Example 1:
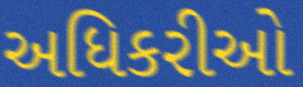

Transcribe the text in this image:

અધિકરીઓ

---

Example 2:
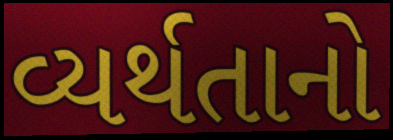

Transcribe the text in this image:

વ્યર્થતાનો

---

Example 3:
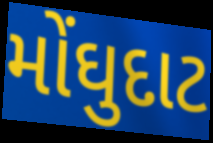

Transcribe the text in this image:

મોંઘુદાટ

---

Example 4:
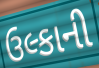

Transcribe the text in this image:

ઉલ્કાની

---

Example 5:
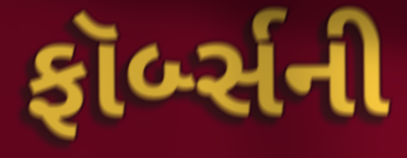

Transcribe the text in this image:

ફૉર્બ્સની